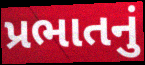
પ્રભાતનું